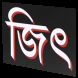
জিৎ